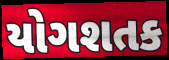
યોગશતક